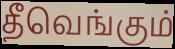
தீவெங்கும்